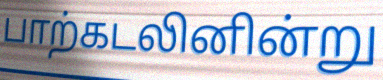
பாற்கடலினின்று